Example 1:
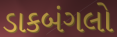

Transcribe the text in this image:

ડાકબંગલો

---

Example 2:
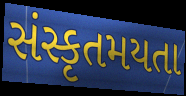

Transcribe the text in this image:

સંસ્કૃતમયતા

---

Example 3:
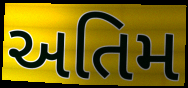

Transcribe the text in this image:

અતિમ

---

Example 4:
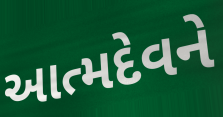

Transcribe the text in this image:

આત્મદેવને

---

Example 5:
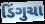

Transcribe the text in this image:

ડિંગુચા